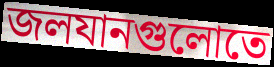
জলযানগুলোতে